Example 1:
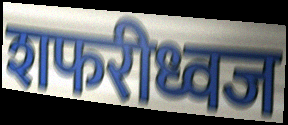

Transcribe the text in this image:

शफरीध्वज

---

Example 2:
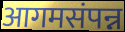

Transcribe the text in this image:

आगमसंपन्न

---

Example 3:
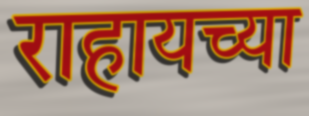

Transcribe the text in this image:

राहायच्या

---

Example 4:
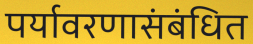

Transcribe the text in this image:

पर्यावरणासंबंधित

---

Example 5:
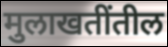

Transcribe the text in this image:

मुलाखतींतील